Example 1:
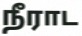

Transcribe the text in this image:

நீராட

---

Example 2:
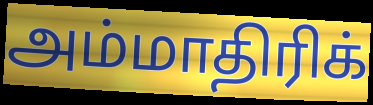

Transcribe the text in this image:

அம்மாதிரிக்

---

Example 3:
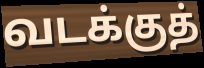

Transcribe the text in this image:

வடக்குத்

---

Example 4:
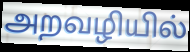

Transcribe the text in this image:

அறவழியில்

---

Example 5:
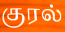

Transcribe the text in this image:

குரல்